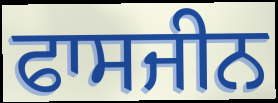
ਫਾਸਜੀਨ